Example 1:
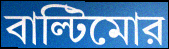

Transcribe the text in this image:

বাল্টিমোর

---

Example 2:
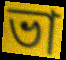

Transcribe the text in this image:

ভা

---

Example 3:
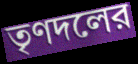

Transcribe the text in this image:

তৃণদলের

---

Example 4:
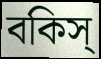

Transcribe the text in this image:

বকিস্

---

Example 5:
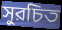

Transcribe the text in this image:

সুরচিত